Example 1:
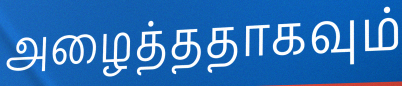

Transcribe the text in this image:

அழைத்ததாகவும்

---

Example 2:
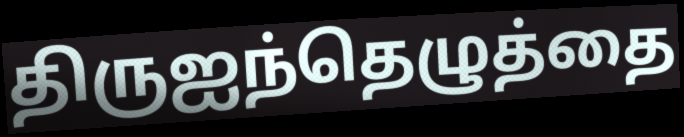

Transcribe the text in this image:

திருஐந்தெழுத்தை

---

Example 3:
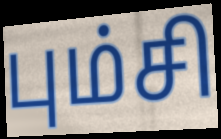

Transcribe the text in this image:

பும்சி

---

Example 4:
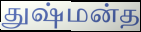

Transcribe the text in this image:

துஷ்மன்த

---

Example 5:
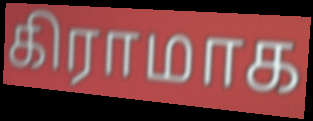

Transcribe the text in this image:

கிராமாக